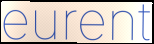
eurent